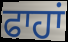
ਫਾਹਾਂ